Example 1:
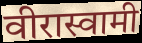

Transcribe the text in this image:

वीरास्वामी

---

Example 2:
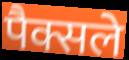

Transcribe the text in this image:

पैक्सले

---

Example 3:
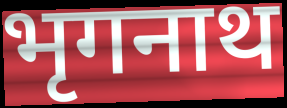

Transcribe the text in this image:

भृगनाथ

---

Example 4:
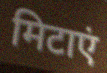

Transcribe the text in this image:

मिटाएं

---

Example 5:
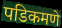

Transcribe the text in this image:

पडिकमणे